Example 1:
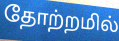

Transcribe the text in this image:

தோற்றமில்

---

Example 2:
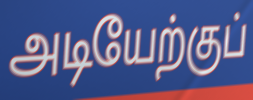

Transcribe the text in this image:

அடியேற்குப்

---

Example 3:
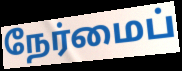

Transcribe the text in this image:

நேர்மைப்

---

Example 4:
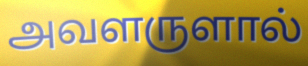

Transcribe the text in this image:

அவளருளால்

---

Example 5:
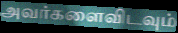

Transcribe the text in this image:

அவர்களைவிடவும்